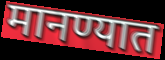
मानण्यात